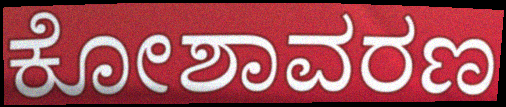
ಕೋಶಾವರಣ